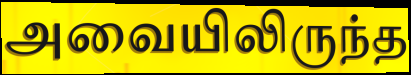
அவையிலிருந்த